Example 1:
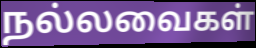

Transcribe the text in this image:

நல்லவைகள்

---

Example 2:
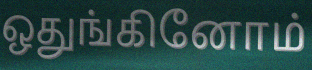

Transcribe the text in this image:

ஒதுங்கினோம்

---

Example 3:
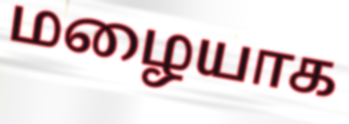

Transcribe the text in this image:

மழையாக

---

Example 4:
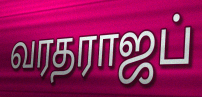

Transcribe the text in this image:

வரதராஜப்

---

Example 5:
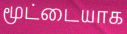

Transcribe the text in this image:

மூட்டையாக